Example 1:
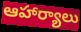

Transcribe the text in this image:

ఆహార్యాలు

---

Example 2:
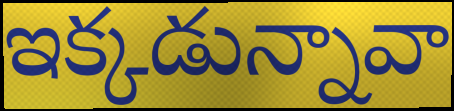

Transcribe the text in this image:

ఇక్కడున్నావా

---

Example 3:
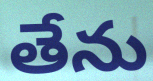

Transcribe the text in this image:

తేను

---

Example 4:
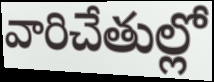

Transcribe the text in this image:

వారిచేతుల్లో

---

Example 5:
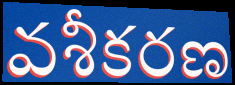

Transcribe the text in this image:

వశీకరణ